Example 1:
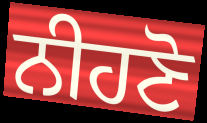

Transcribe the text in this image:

ਨੀਹਣੋ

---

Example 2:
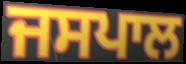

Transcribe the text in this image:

ਜਸਪਾਲ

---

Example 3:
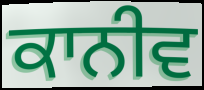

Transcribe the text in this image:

ਕਾਨੀਵ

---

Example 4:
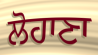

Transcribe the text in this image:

ਲੋਹਾਣਾ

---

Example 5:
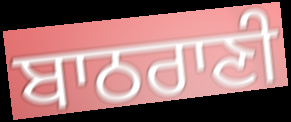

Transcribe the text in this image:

ਬਾਠਰਾਣੀ